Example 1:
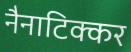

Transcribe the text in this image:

नैनाटिक्कर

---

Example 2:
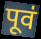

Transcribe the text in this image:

पूव॑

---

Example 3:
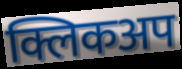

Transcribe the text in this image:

क्लिकअप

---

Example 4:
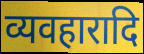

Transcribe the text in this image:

व्यवहारादि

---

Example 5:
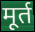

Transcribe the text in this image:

मूर्त